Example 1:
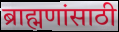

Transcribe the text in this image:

ब्राह्मणांसाठी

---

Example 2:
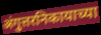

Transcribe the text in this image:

अंगुत्तरनिकायाच्या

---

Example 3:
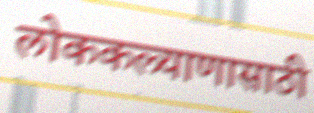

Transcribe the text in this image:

लोककल्याणासाठी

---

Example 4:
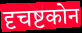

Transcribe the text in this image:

दृचष्टकोन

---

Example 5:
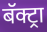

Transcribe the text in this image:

बॅक्ट्रा